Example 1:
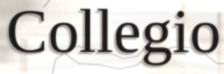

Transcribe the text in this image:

Collegio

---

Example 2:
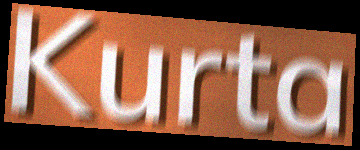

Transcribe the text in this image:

Kurta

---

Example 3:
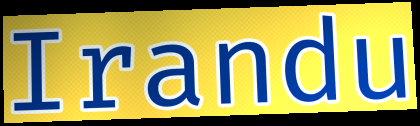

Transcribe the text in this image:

Irandu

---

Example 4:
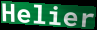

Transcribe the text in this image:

Helier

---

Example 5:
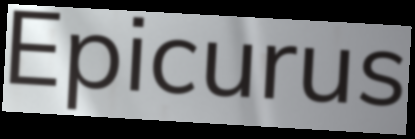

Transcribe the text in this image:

Epicurus